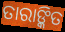
ତାରାଙ୍କିତ